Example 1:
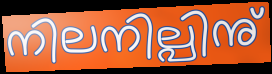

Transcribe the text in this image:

നിലനില്പിനു്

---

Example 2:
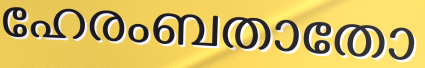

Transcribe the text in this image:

ഹേരംബതാതോ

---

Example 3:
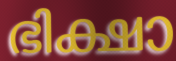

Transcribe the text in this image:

ഭിക്ഷാ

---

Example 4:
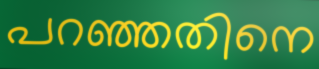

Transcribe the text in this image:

പറഞ്ഞതിനെ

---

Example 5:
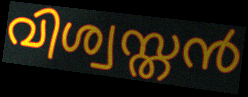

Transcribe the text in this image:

വിശ്വസ്തൻ